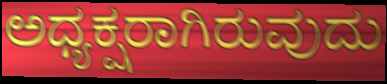
ಅಧ್ಯಕ್ಷರಾಗಿರುವುದು